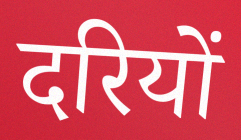
दरियों